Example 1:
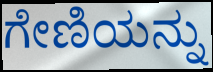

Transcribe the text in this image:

ಗೇಣಿಯನ್ನು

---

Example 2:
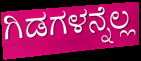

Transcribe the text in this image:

ಗಿಡಗಳನ್ನೆಲ್ಲ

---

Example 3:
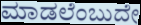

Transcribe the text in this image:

ಮಾಡಲೆಂಬುದೇ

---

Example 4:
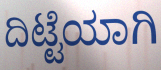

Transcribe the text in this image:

ದಿಟ್ಟೆಯಾಗಿ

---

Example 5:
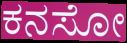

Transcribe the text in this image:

ಕನಸೋ